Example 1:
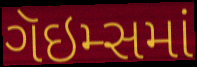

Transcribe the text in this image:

ગૅઇમ્સમાં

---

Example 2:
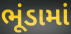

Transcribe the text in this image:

ભૂંડામાં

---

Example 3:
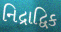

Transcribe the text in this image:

નિદ્રાદ્વિક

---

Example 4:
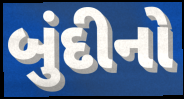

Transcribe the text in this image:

બુંદીનો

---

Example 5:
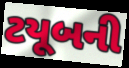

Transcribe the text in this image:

ટયૂબની